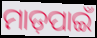
ମାଡ଼ପାଇଁ